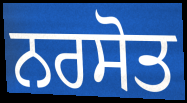
ਨਰਸੋਤ